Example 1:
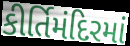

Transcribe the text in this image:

કીર્તિમંદિરમાં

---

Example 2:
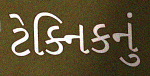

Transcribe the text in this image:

ટેક્નિકનું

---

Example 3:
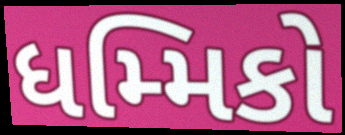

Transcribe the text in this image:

ધમ્મિકો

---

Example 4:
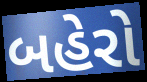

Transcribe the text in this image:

બહેરો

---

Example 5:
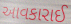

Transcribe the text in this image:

આવકારાઈ